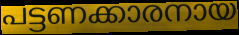
പട്ടണക്കാരനായ